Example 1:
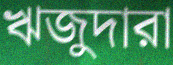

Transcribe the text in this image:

ঋজুদারা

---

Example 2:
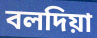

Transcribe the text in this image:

বলদিয়া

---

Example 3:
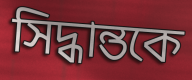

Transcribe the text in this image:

সিদ্ধান্তকে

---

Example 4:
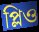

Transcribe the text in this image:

প্লিও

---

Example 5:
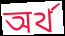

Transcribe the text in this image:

অর্থ